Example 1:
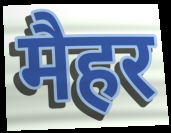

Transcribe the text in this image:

मैहर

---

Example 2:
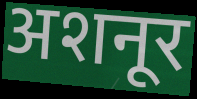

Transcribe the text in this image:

अशनूर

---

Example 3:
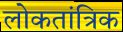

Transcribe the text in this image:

लोकतांत्रिक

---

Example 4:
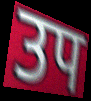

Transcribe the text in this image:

उप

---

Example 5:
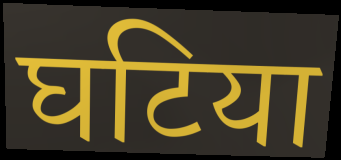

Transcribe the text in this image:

घटिया